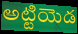
అట్టియెడ